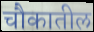
चौकातील